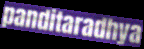
panditaradhya